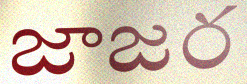
జాజర